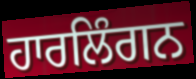
ਹਾਰਲਿੰਗਨ